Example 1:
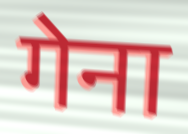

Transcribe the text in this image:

गेना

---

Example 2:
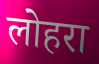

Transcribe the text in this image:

लोहरा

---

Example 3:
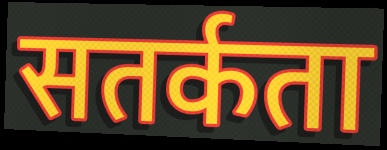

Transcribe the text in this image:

सतर्कता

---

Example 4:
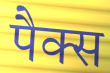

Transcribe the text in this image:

पैक्स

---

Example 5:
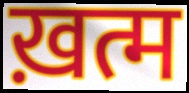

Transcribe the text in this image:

ख़त्म